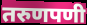
तरुणपणी